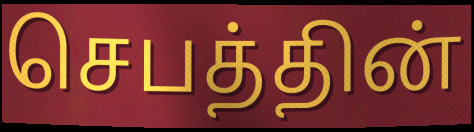
செபத்தின்